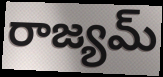
రాజ్యమ్